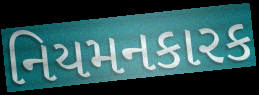
નિયમનકારક